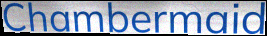
Chambermaid